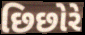
છિછોરે